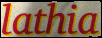
lathia